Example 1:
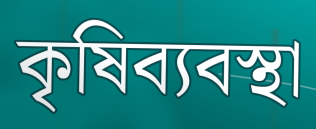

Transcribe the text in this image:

কৃষিব্যবস্থা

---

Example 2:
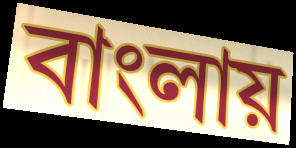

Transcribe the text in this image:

বাংলায়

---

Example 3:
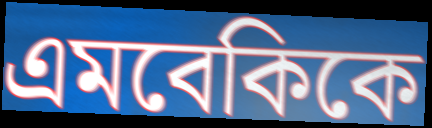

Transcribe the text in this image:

এমবেকিকে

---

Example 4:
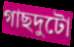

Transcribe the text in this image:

গাছদুটো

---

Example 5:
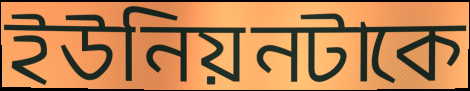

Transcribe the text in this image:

ইউনিয়নটাকে